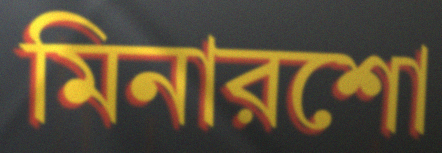
মিনারশো